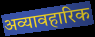
अव्यावहारिक